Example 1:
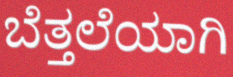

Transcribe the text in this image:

ಬೆತ್ತಲೆಯಾಗಿ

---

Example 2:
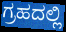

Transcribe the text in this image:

ಗ್ರಹದಲ್ಲಿ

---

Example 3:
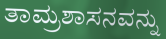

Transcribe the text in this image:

ತಾಮ್ರಶಾಸನವನ್ನು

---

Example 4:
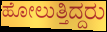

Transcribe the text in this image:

ಹೋಲುತ್ತಿದ್ದರು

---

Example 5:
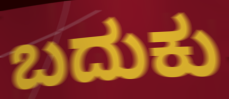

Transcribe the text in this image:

ಬದುಕು